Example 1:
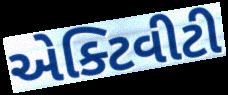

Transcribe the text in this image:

એક્ટિવીટી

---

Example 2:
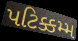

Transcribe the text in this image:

પટિક્કમ્મ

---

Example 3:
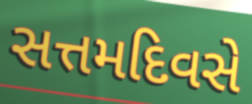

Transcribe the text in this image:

સત્તમદિવસે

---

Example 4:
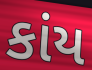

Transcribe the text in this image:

કાંય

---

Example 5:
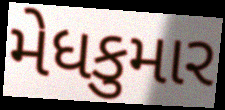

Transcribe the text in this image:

મેધકુમાર